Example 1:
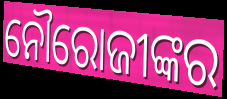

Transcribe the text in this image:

ନୌରୋଜୀଙ୍କର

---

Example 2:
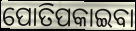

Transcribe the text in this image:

ପୋତିପକାଇବା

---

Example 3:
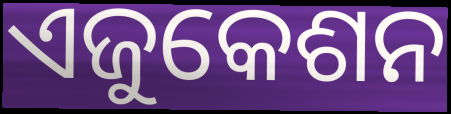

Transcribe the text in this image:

ଏଜୁକେଶନ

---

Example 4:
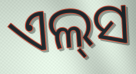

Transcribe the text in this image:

ଏଲ୍‌ସ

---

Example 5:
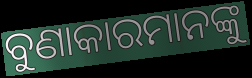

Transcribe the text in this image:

ବୁଣାକାରମାନଙ୍କୁ